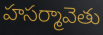
హసర్మావెతు